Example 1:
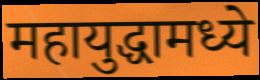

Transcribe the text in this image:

महायुद्धामध्ये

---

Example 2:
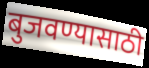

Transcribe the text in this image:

बुजवण्यासाठी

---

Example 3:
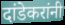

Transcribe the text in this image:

दांडेकरांनी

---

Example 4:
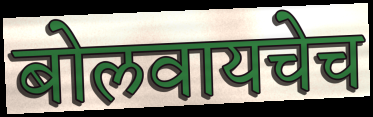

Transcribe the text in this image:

बोलवायचेच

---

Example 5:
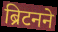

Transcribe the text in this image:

ब्रिटनने